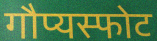
गौप्यस्फोट